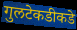
गुलटेकडीकडे